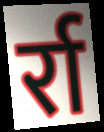
र्रा